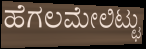
ಹೆಗಲಮೇಲಿಟ್ಟು